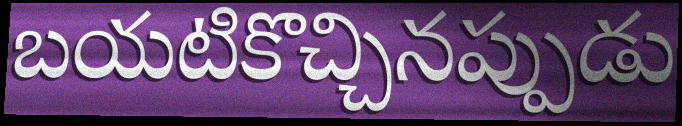
బయటికొచ్చినప్పుడు